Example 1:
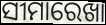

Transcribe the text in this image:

ସୀମାରେଖା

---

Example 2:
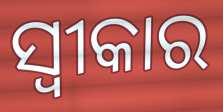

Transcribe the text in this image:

ସ୍ୱୀକାର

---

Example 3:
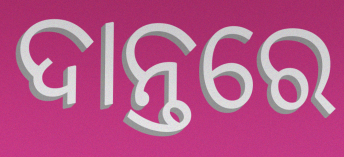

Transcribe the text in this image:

ଦାନ୍ତରେ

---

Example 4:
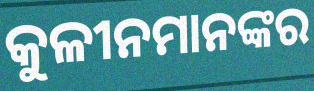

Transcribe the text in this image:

କୁଳୀନମାନଙ୍କର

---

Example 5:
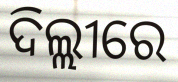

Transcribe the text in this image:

ଦିଲ୍ଲୀରେ